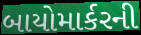
બાયોમાર્કરની